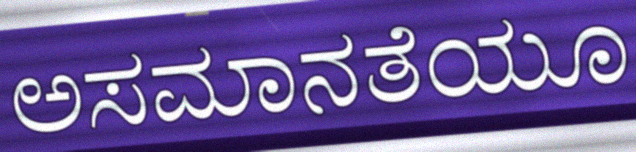
ಅಸಮಾನತೆಯೂ